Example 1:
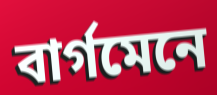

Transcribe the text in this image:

বাৰ্গমেনে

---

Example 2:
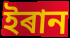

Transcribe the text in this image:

ইৰান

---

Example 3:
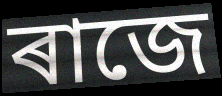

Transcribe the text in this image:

ৰাজে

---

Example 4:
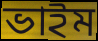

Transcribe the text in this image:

ভাইম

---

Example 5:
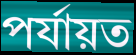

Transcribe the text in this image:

পৰ্যায়ত